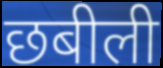
छबीली